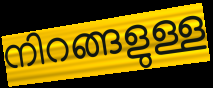
നിറങ്ങളുള്ള